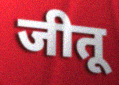
जीतू